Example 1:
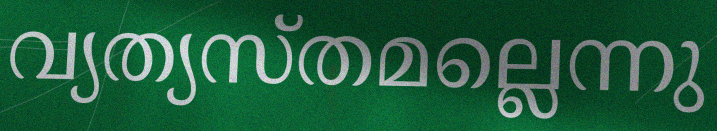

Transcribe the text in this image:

വ്യത്യസ്തമല്ലെന്നു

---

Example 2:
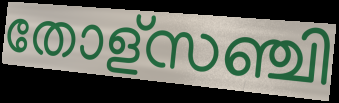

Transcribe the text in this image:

തോള്സഞ്ചി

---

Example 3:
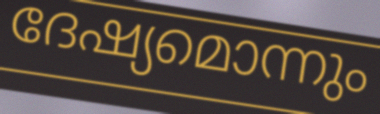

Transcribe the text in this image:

ദേഷ്യമൊന്നും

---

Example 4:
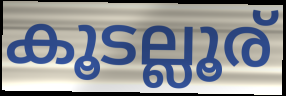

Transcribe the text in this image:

കൂടല്ലൂര്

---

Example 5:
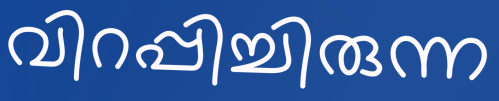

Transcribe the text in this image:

വിറപ്പിച്ചിരുന്ന